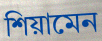
শিয়ামেন